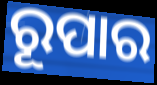
ରୂପାର